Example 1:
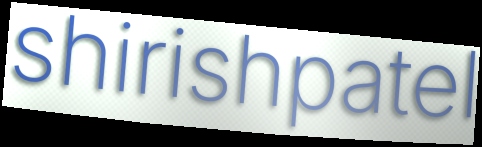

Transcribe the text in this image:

shirishpatel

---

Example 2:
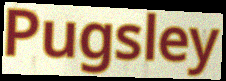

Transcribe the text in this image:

Pugsley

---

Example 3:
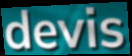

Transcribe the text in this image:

devis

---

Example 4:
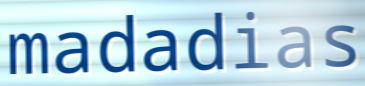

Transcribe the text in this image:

madadias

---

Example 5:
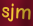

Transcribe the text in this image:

sjm